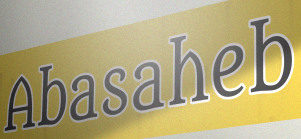
Abasaheb